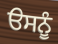
ੳਸਨੂੰ